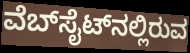
ವೆಬ್‌ಸೈಟ್‌ನಲ್ಲಿರುವ